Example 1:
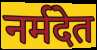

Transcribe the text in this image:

नर्मदेत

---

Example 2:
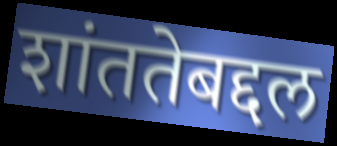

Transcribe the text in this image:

शांततेबद्दल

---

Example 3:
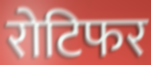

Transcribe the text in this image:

रोटिफर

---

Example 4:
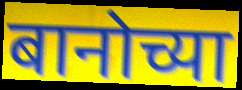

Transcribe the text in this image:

बानोच्या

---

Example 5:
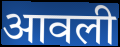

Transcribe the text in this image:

आवली